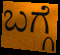
ಬಗ್ಗೆ